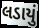
લડાયું